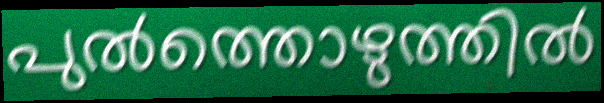
പുൽത്തൊഴുത്തിൽ